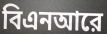
বিএনআরে